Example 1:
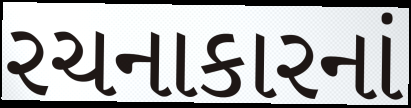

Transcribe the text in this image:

રચનાકારનાં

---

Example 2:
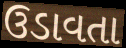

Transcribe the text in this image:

ઉડાવતા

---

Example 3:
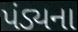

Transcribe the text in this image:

પંડ્યના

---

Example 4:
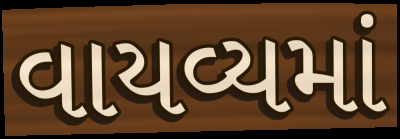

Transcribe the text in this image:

વાયવ્યમાં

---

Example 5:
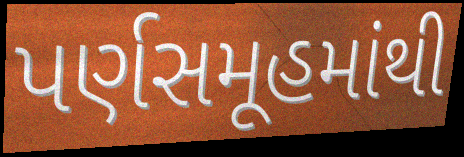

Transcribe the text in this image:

પર્ણસમૂહમાંથી